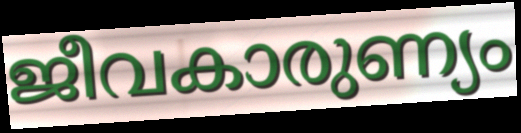
ജീവകാരുണ്യം